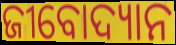
ଜୀବୋଦ୍ୟାନ